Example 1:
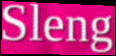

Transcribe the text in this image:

Sleng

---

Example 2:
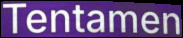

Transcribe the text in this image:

Tentamen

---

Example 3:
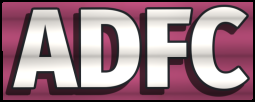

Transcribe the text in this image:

ADFC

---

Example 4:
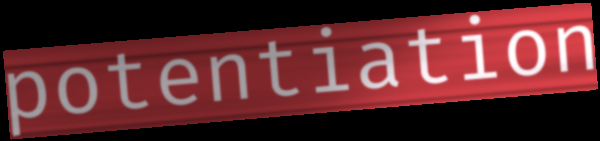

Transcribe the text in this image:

potentiation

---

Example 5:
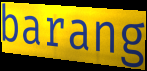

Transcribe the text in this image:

barang